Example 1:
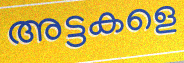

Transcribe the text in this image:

അട്ടകളെ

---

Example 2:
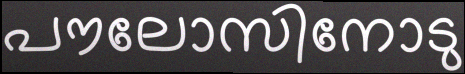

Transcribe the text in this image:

പൗലോസിനോടു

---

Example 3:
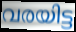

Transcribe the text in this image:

വരയിട്ട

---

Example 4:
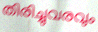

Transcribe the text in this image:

തിരിച്ചുവരവും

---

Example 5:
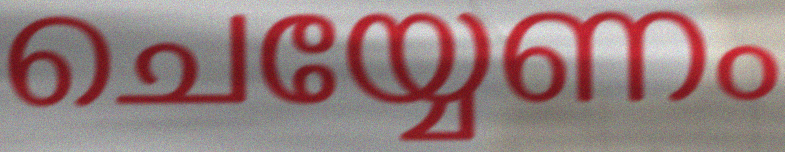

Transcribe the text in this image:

ചെയ്യേണം